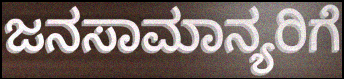
ಜನಸಾಮಾನ್ಯರಿಗೆ